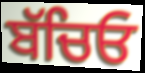
ਬੱਚਿਓ